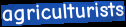
agriculturists